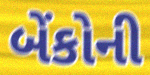
બેંકોની